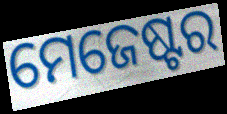
ମେଜେଷ୍ଟର